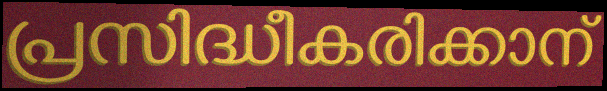
പ്രസിദ്ധീകരിക്കാന്